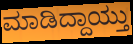
ಮಾಡಿದ್ದಾಯ್ತು